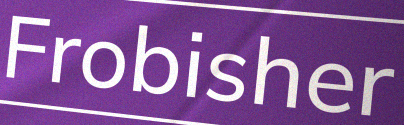
Frobisher